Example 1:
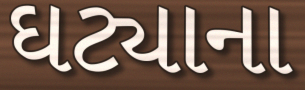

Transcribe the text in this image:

ઘટ્યાના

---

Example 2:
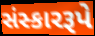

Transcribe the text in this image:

સંસ્કારરૂપે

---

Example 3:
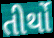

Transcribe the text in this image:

તીર્થો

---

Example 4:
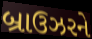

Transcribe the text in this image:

બ્રાઉઝરને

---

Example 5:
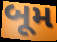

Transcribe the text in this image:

બૂમ